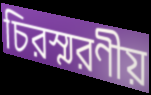
চিরস্মরণীয়